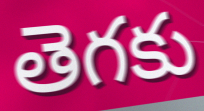
తెగకు